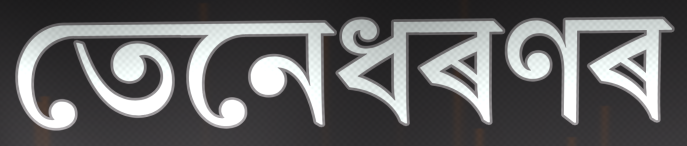
তেনেধৰণৰ